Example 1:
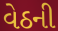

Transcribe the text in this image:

વેઠની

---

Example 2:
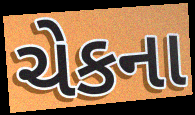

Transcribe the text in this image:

ચેકના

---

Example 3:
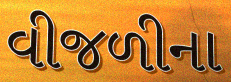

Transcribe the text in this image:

વીજળીના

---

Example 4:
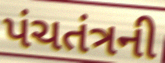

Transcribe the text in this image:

પંચતંત્રની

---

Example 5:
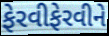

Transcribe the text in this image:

ફેરવીફેરવીને